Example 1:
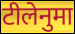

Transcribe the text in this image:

टीलेनुमा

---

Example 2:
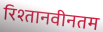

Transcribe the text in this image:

रिश्तानवीनतम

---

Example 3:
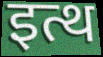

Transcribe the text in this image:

इत्थ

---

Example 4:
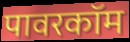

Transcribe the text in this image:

पावरकॉम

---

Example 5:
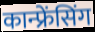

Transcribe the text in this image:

कान्फ्रेंसिंग